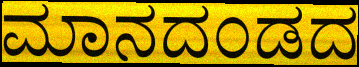
ಮಾನದಂಡದ